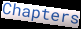
Chapters